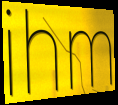
ihm